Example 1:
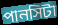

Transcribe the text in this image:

পানসিটা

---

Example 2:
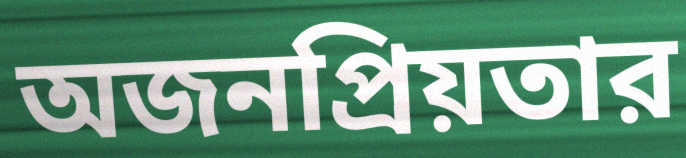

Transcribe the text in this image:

অজনপ্রিয়তার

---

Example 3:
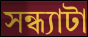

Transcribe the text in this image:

সন্ধ্যাটা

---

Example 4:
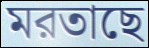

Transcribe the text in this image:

মরতাছে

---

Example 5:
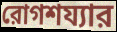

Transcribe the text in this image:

রোগশয্যার